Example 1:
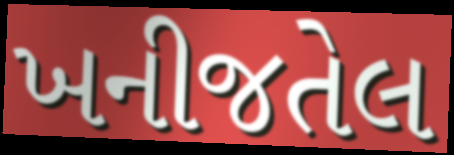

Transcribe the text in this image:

ખનીજતેલ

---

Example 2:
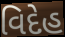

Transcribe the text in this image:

વિદેહ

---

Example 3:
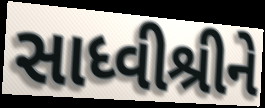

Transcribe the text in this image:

સાધ્વીશ્રીને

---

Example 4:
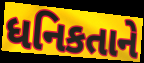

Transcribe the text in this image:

ધનિકતાને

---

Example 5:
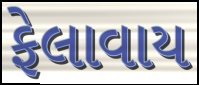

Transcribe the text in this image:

ફેલાવાય